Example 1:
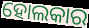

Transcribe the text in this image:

ହୋଲକାର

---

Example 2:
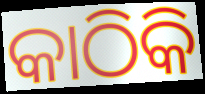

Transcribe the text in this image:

କାଠିକି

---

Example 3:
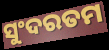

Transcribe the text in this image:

ସୁଂଦରତମ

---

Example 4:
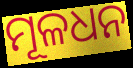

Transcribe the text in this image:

ମୂଳଧନ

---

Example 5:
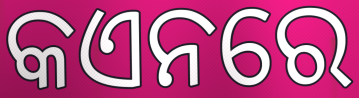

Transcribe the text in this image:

କଏନରେ